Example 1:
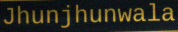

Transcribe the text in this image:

Jhunjhunwala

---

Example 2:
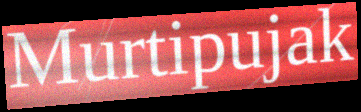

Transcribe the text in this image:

Murtipujak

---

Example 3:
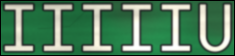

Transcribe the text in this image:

IIIIIU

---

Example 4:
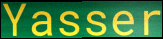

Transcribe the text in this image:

Yasser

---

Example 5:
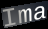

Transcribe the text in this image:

Ima